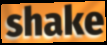
shake